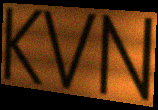
KVN